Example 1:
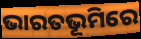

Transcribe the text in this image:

ଭାରତଭୂମିରେ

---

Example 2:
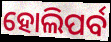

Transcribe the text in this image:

ହୋଲିପର୍ବ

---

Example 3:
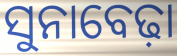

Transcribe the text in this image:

ସୁନାବେଢ଼ା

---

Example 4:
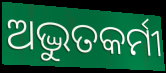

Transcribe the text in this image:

ଅଦ୍ଭୁତକର୍ମୀ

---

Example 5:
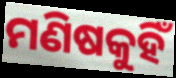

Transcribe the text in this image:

ମଣିଷକୁହିଁ